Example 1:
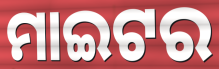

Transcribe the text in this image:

ମାଇଟର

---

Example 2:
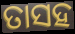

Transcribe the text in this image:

ତାସହ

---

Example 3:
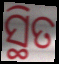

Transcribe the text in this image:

ସ୍ଥିତ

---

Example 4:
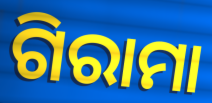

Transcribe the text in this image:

ଗିରାମା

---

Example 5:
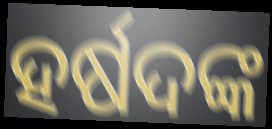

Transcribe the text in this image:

ହର୍ଷଦଙ୍କ